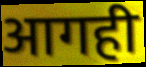
आगही